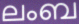
ലംബ